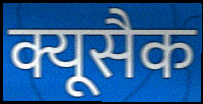
क्यूसैक